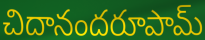
చిదానందరూపామ్